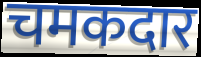
चमकदार